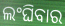
ଲଂଘିବାର